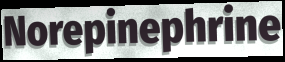
Norepinephrine